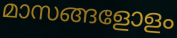
മാസങ്ങളോളം